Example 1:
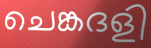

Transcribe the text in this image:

ചെങ്കദളി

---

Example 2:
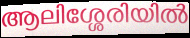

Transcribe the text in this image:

ആലിശ്ശേരിയിൽ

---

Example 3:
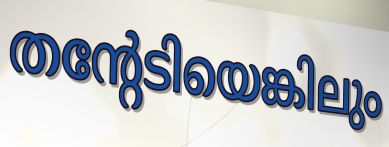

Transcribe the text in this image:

തന്റേടിയെങ്കിലും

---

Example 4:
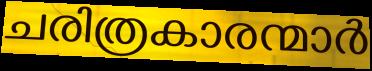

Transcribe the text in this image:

ചരിത്രകാരന്മാർ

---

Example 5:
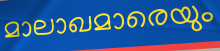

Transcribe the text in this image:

മാലാഖമാരെയും